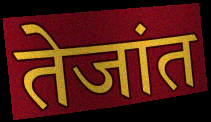
तेजांत